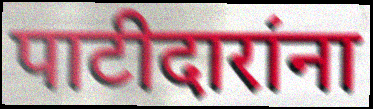
पाटीदारांना